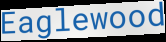
Eaglewood